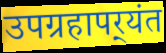
उपग्रहापर्यंत